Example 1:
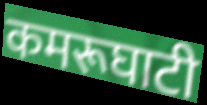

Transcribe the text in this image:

कमरूघाटी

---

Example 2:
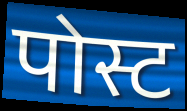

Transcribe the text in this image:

पोस्‍ट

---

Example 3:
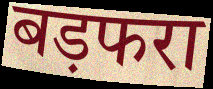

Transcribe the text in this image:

बड़फरा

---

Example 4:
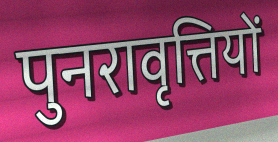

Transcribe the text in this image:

पुनरावृत्तियों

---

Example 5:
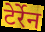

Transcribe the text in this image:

टेर्रेन